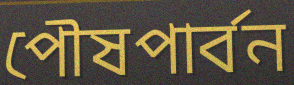
পৌষপার্বন